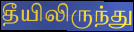
தீயிலிருந்து